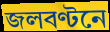
জলবণ্টনে